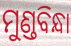
ମୁଣ୍ଡବିନ୍ଧା